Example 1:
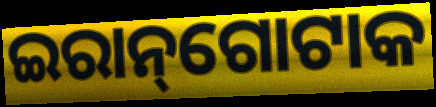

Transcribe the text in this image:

ଇରାନ୍‌ଗୋଟାକ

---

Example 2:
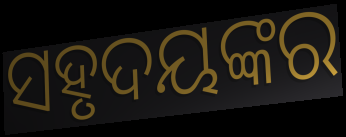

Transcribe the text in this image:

ସହୃଦୟଙ୍କର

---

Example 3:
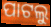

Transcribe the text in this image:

ପାଟଲୁ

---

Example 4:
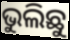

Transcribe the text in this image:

ଭୁଲିଛୁ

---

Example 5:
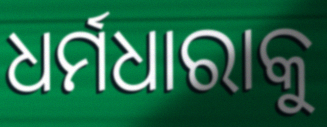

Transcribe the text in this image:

ଧର୍ମଧାରାକୁ